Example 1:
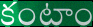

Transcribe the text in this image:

కంటాం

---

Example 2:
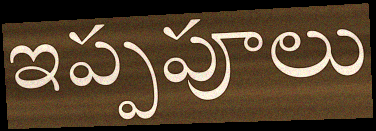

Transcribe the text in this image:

ఇప్పపూలు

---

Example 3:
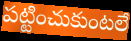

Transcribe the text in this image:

పట్టించుకుంటలే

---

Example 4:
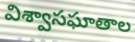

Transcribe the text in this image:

విశ్వాసఘాతాల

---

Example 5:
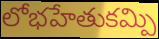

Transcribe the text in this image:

లోభహేతుకమ్పి